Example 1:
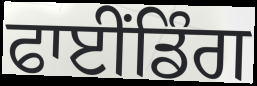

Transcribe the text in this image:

ਫਾਈਂਡਿੰਗ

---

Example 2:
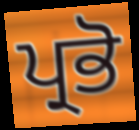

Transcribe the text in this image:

ਪ੍ਰਭੋ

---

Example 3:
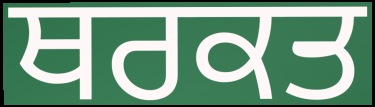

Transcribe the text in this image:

ਥਰਕਤ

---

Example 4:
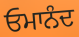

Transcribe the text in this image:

ਓਮਾਨੰਦ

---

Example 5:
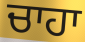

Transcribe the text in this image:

ਚਾਹਾ